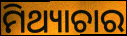
ମିଥ୍ୟାଚାର